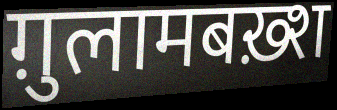
ग़ुलामबख़्श